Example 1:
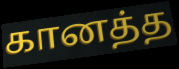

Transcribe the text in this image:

கானத்த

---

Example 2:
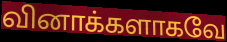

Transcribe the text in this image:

வினாக்களாகவே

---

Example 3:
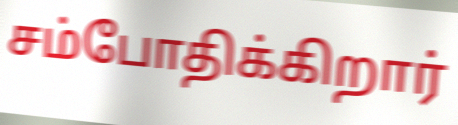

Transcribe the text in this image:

சம்போதிக்கிறார்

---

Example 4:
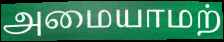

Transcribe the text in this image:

அமையாமற்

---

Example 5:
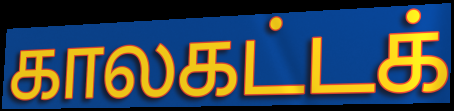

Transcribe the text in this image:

காலகட்டக்